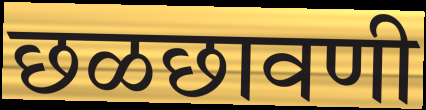
छळछावणी